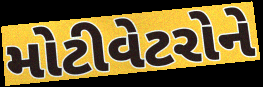
મોટીવેટરોને